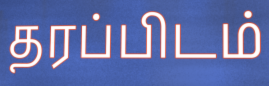
தரப்பிடம்